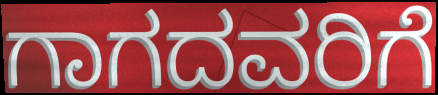
ಗಾಗದವರಿಗೆ